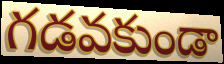
గడవకుండా